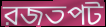
রজতপট